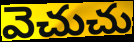
వెచుచు